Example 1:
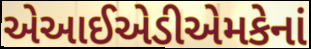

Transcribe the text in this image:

એઆઈએડીએમકેનાં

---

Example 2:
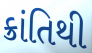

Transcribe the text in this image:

ક્રાંતિથી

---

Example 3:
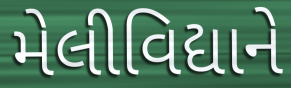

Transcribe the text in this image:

મેલીવિદ્યાને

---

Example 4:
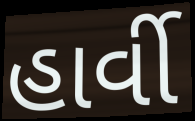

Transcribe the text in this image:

હાર્વી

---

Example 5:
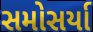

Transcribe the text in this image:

સમોસર્યા